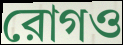
রোগও